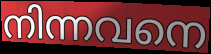
നിന്നവനെ